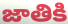
జాతికి